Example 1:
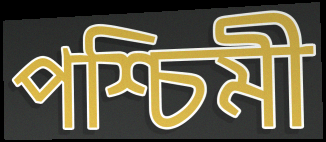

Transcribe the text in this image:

পশ্চিমী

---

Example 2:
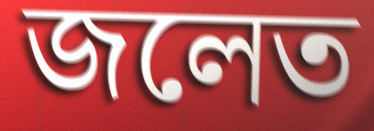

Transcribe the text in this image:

জলেত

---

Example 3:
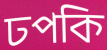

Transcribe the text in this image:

ঢপকি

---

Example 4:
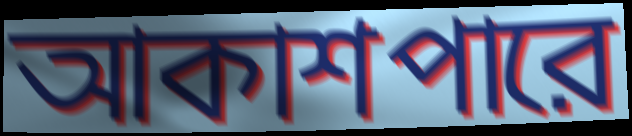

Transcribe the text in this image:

আকাশপারে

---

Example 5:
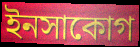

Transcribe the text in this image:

ইনসাকোগ